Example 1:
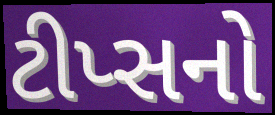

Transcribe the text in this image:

ટીપ્સનો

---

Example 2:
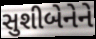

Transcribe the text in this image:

સુશીબેનેને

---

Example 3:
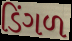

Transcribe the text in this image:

ડિંગળ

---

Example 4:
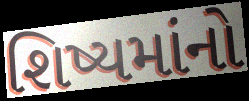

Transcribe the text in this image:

શિષ્યમાંનો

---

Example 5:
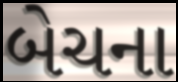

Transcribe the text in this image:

બેચના